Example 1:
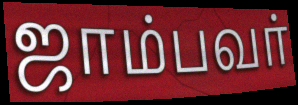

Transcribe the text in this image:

ஜாம்பவர்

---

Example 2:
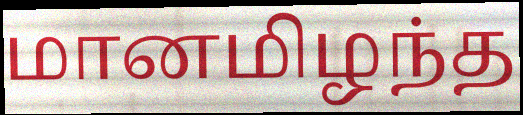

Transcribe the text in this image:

மானமிழந்த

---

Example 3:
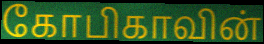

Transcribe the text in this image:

கோபிகாவின்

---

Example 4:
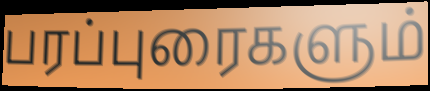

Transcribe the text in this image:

பரப்புரைகளும்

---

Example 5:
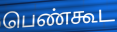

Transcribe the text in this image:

பெண்கூட